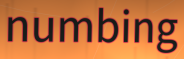
numbing